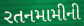
રતનમામીની